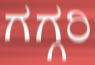
ಗಗ್ಗರಿ